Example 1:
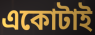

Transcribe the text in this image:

একোটাই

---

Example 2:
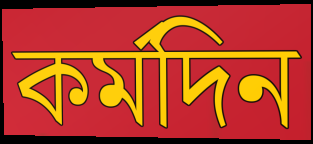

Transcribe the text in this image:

কৰ্মদিন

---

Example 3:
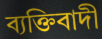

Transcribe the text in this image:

ব্যক্তিবাদী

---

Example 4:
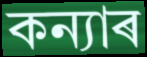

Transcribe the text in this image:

কন্যাৰ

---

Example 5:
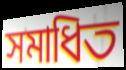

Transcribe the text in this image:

সমাধিত